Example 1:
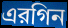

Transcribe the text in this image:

এরগিন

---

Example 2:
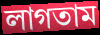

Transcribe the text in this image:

লাগতাম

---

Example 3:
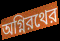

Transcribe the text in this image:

অগ্নিরথের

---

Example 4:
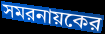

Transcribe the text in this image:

সমরনায়কের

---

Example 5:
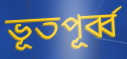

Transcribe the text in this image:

ভূতপূর্ব্ব